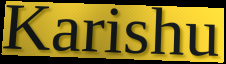
Karishu